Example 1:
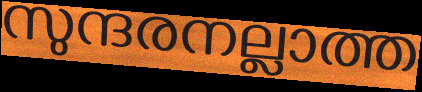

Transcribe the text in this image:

സുന്ദരനല്ലാത്ത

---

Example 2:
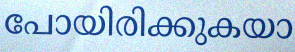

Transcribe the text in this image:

പോയിരിക്കുകയാ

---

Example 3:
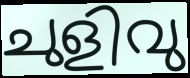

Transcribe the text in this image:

ചുളിവു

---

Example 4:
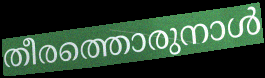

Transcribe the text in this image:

തീരത്തൊരുനാൾ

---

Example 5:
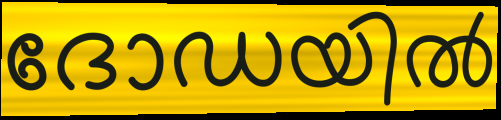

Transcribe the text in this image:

ദോഡയിൽ